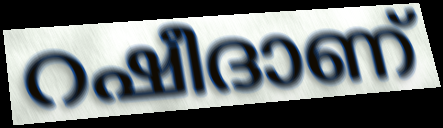
റഷീദാണ്